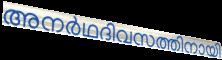
അനർഥദിവസത്തിനായി